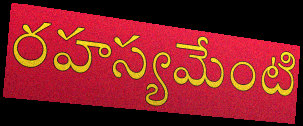
రహస్యమేంటి